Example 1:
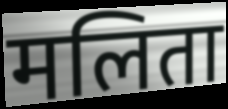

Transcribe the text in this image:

मलिता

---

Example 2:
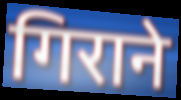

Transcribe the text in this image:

गिराने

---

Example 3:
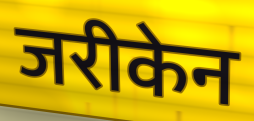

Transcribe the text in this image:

जरीकेन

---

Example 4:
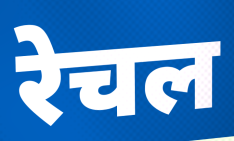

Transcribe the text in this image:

रेचल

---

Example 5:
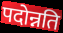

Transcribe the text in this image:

पदोन्नति